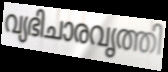
വ്യഭിചാരവൃത്തി